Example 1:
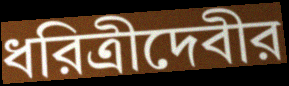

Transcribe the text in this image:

ধরিত্রীদেবীর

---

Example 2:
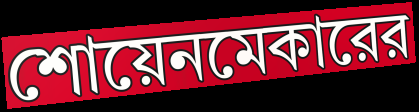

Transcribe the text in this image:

শোয়েনমেকারের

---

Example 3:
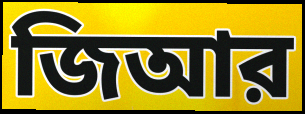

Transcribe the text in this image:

জিআর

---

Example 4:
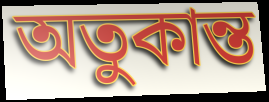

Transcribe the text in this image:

অতুকান্ত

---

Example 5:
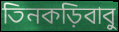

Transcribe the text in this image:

তিনকড়িবাবু